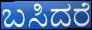
ಬಸಿದರೆ